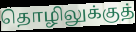
தொழிலுக்குத்